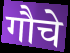
गौचे